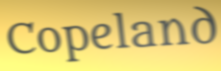
Copeland